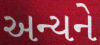
અન્યને